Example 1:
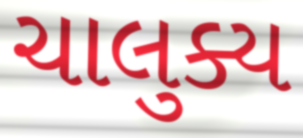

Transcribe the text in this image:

ચાલુક્ય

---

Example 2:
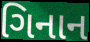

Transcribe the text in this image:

ગિનાન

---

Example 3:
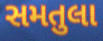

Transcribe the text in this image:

સમતુલા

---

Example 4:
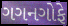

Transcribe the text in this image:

ગગનગોફે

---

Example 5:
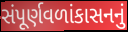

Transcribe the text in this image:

સંપૂર્ણવળાંકાસનનું